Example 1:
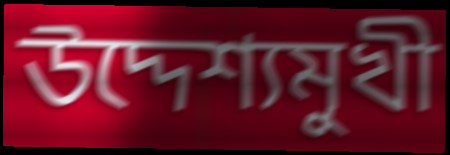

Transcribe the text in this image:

উদ্দেশ্যমুখী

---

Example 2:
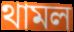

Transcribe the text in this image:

থামল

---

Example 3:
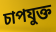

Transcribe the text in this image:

চাপযুক্ত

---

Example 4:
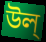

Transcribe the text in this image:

উল্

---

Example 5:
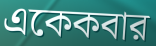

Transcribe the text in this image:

একেকবার